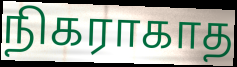
நிகராகாத